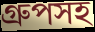
গ্রুপসহ